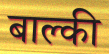
बाल्की